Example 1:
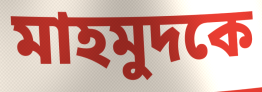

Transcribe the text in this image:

মাহমুদকে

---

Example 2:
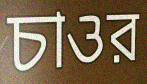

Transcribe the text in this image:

চাওর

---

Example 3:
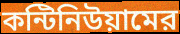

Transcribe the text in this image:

কন্টিনিউয়ামের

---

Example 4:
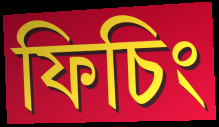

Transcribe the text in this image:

ফিচিং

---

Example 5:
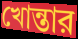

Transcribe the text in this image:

খোন্তার